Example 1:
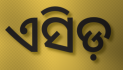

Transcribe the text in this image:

ଏସିଡ଼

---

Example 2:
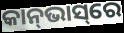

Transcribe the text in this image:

କାନ୍‌ଭାସ୍‌ରେ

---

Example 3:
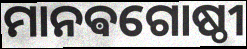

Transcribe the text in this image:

ମାନଵଗୋଷ୍ଠୀ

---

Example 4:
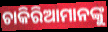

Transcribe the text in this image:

ଚାକିରିଆମାନଙ୍କୁ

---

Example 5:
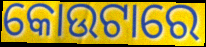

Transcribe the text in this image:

କୋଉଟାରେ